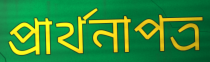
প্রার্থনাপত্র